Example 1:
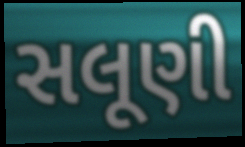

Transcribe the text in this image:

સલૂણી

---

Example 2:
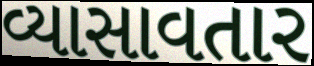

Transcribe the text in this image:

વ્યાસાવતાર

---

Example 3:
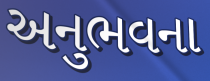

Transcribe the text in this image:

અનુભવના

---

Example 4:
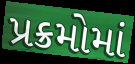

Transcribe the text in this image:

પ્રક્રમોમાં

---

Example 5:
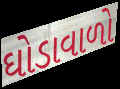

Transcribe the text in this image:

ઘોડાવાળો